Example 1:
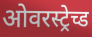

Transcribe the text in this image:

ओवरस्ट्रेच्ड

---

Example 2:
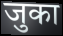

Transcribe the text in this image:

जुका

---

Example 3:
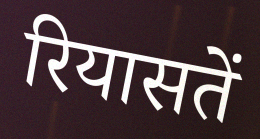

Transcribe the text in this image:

रियासतें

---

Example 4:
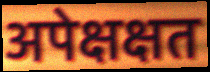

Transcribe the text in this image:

अपेक्षक्षत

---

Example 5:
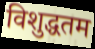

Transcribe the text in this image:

विशुद्धतम